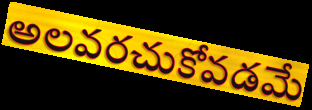
అలవరచుకోవడమే